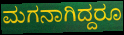
ಮಗನಾಗಿದ್ದರೂ